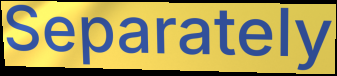
Separately